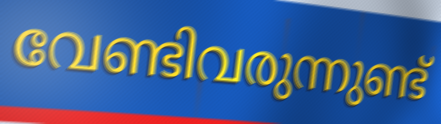
വേണ്ടിവരുന്നുണ്ട്